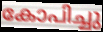
കോപിച്ചു